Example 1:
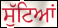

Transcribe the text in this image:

ਸੁੱਟਿਆਂ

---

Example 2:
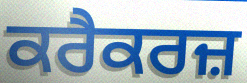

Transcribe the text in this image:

ਕਰੈਕਰਜ਼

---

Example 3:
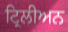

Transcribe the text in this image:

ਟ੍ਰਿਲੀਅਨ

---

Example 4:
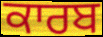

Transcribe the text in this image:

ਕਾਰਬ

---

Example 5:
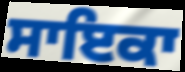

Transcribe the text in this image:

ਸਾਇਕਾ